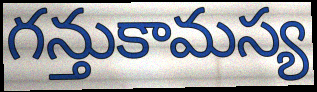
గన్తుకామస్య